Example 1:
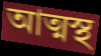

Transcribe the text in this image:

আত্মস্থ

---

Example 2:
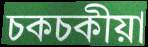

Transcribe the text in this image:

চকচকীয়া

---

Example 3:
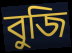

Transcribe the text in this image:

বুজি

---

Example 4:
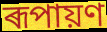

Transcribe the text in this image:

ৰূপায়ণ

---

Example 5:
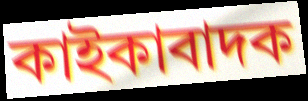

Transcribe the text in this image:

কাইকাবাদক